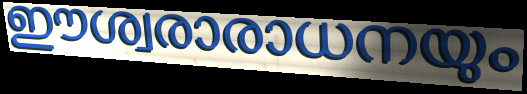
ഈശ്വരാരാധനയും